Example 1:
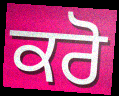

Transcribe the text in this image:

ਕਰੋ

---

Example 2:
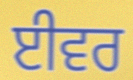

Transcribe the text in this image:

ਈਵਰ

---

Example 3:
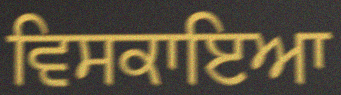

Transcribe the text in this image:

ਵਿਸਕਾਇਆ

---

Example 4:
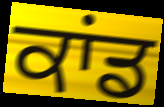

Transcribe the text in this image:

ਕਾਂਡ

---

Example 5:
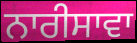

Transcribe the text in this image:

ਨਾਰੀਸਾਵਾ